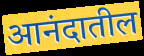
आनंदातील